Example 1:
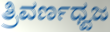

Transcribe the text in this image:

ತ್ರಿವರ್ಣಧ್ವಜ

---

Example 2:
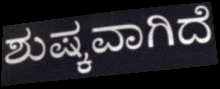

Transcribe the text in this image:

ಶುಷ್ಕವಾಗಿದೆ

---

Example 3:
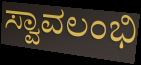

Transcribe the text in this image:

ಸ್ವಾವಲಂಭಿ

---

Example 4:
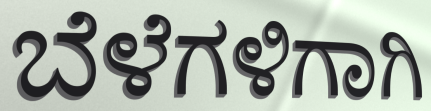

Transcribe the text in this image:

ಬೆಳೆಗಳಿಗಾಗಿ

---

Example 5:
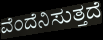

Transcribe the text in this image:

ವೆಂದೆನಿಸುತ್ತದೆ